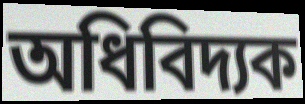
অধিবিদ্যক